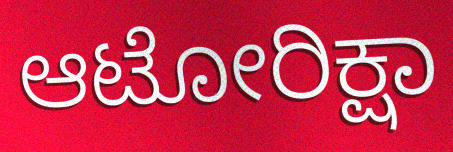
ಆಟೋರಿಕ್ಷಾ